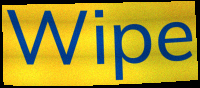
Wipe